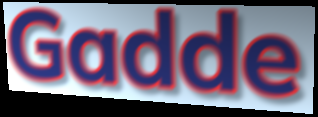
Gadde